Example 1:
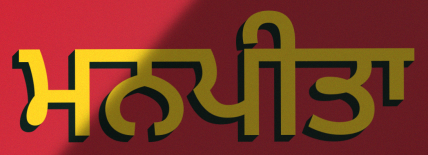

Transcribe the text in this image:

ਮਨਪੀਤਾ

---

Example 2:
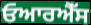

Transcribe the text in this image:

ਓਆਰਐੱਸ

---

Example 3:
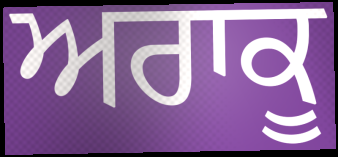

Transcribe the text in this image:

ਅਰਾਕੂ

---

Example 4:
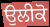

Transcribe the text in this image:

ਉਲੀਕੋ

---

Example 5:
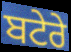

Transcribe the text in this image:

ਬਟੇਰੇ